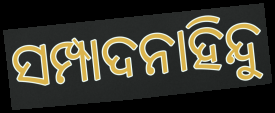
ସମ୍ପାଦନାହିନ୍ଦୁ